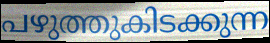
പഴുത്തുകിടക്കുന്ന